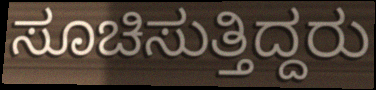
ಸೂಚಿಸುತ್ತಿದ್ದರು